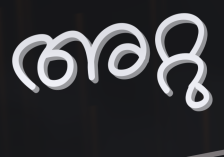
അറ്റു